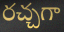
రచ్చగా